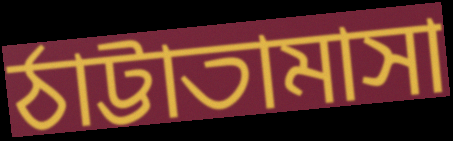
ঠাট্টাতামাসা